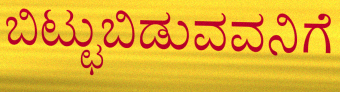
ಬಿಟ್ಟುಬಿಡುವವನಿಗೆ